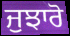
ਜੁਝਾਰੋ